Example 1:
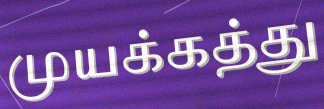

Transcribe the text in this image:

முயக்கத்து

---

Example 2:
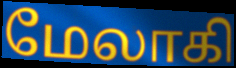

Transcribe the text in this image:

மேலாகி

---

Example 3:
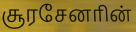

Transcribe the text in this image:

சூரசேனரின்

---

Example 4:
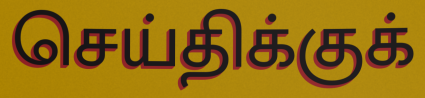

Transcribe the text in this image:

செய்திக்குக்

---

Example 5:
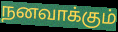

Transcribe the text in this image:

நனவாக்கும்